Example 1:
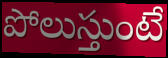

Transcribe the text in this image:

పోలుస్తుంటే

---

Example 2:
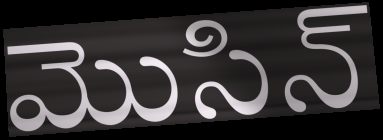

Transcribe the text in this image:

మొసిన్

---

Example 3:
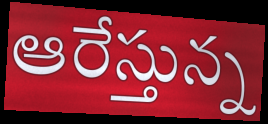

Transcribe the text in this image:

ఆరేస్తున్న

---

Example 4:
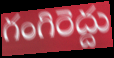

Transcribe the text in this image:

గంగిరెద్దు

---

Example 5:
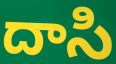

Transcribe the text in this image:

దాసి